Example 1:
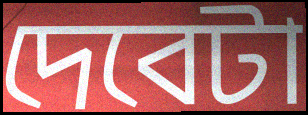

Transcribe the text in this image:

দেবেটা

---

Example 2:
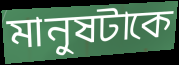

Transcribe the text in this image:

মানুষটাকে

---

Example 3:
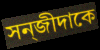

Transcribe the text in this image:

সন্জীদাকে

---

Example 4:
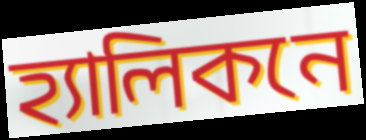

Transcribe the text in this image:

হ্যালিকনে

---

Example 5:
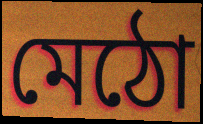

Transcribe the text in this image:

মেঠো